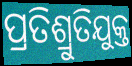
ପ୍ରତିଶ୍ରୁତିଯୁକ୍ତ